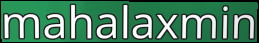
mahalaxmin